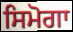
ਸਿਮੋਗਾ